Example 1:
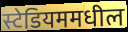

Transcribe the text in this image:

स्टेडियममधील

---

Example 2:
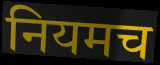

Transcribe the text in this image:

नियमच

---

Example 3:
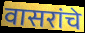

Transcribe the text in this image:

वासरांचे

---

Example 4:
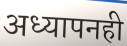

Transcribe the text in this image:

अध्यापनही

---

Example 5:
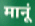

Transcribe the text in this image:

मानूं